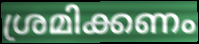
ശ്രമിക്കണം